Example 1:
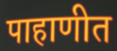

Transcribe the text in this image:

पाहाणीत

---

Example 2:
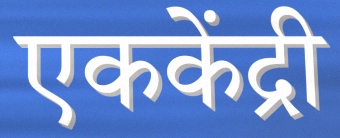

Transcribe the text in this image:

एककेंद्री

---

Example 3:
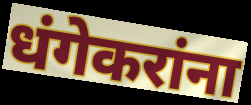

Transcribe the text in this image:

धंगेकरांना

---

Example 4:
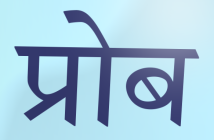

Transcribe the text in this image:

प्रोब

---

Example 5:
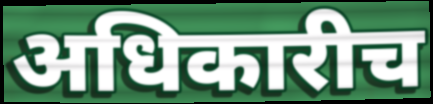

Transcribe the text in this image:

अधिकारीच